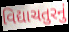
વિદ્યાચતુરનું